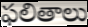
ఫలితాలు